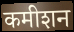
कमीशन